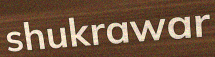
shukrawar